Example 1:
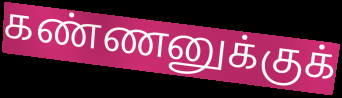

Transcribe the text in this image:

கண்ணனுக்குக்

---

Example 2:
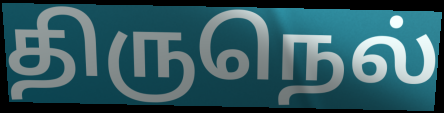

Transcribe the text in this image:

திருநெல்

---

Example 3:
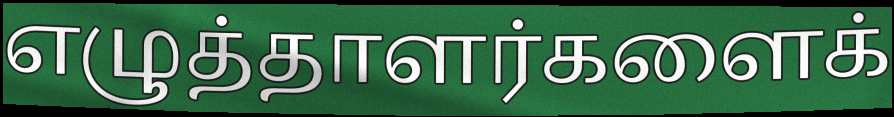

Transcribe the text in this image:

எழுத்தாளர்களைக்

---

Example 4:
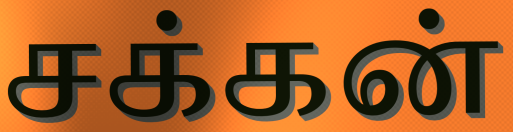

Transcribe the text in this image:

சக்கன்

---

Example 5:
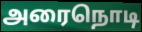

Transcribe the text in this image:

அரைநொடி